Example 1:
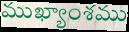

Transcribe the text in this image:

ముఖ్యాంశము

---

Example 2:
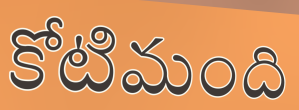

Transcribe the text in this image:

కోటిమంది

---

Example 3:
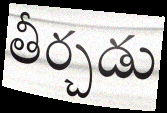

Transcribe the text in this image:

తీర్చడు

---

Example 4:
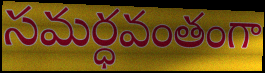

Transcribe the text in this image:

సమర్ధవంతంగా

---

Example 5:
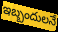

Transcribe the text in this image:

ఇబ్బందులనే